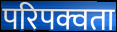
परिपक्‍वता